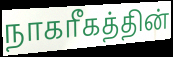
நாகரீகத்தின்